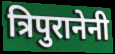
त्रिपुरानेनी